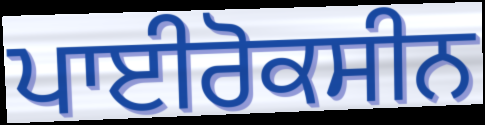
ਪਾਈਰੋਕਸੀਨ